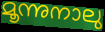
മൂന്നുനാലു